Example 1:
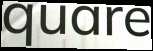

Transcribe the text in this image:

quare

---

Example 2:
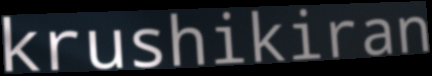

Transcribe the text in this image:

krushikiran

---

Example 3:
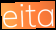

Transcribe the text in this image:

eita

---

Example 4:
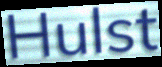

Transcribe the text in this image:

Hulst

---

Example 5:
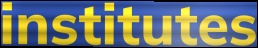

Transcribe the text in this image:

institutes